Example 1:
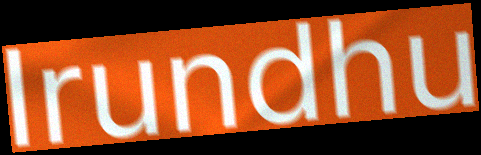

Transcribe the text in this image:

Irundhu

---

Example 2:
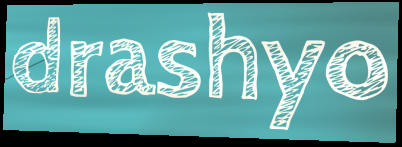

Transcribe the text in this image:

drashyo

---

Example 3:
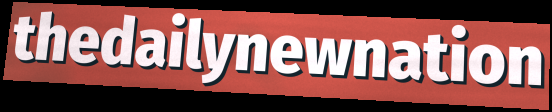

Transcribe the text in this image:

thedailynewnation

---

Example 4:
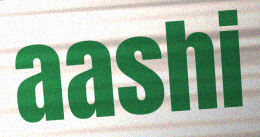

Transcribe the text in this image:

aashi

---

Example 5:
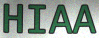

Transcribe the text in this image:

HIAA